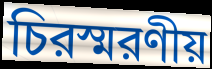
চিরস্মরণীয়